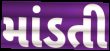
માંડતી